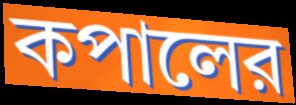
কপালের